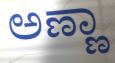
ಅಣ್ಣಾ